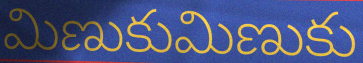
మిణుకుమిణుకు